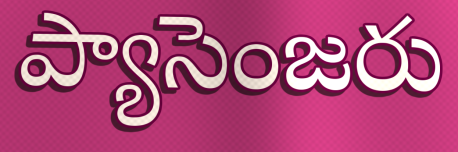
ప్యాసెంజరు